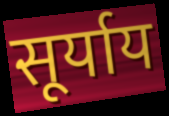
सूर्याय